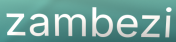
zambezi